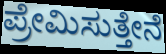
ಪ್ರೇಮಿಸುತ್ತೇನೆ